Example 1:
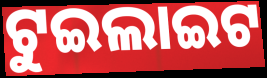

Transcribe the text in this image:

ଟୁଇଲାଇଟ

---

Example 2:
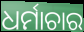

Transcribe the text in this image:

ଧର୍ମାଚାର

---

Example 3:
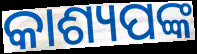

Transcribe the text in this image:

କାଶ୍ୟପଙ୍କ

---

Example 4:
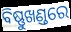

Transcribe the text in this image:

ବିଷ୍ଣୁଖଣ୍ଡରେ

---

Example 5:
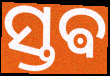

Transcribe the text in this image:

ସ୍ତଵ